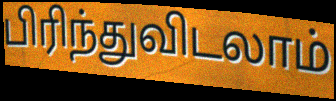
பிரிந்துவிடலாம்